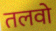
तलवो